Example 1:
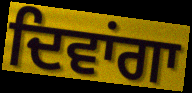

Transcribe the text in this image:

ਦਿਵਾਂਗਾ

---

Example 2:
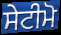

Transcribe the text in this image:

ਸੇਟੀਮੋ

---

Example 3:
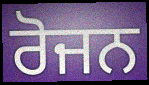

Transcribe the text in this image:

ਰੋਜਨ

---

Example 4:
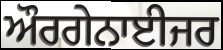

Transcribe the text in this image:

ਔਰਗੇਨਾਈਜਰ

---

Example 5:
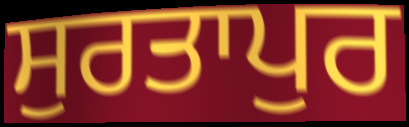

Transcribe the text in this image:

ਸੁਰਤਾਪੁਰ